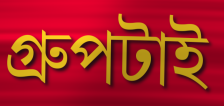
গ্রুপটাই